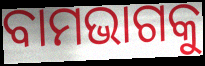
ବାମଭାଗକୁ